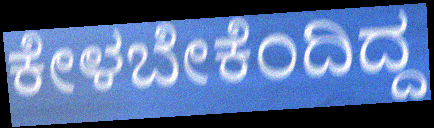
ಕೇಳಬೇಕೆಂದಿದ್ದ